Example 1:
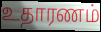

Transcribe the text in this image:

உதாரணம்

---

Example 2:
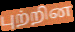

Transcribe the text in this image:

புற்றின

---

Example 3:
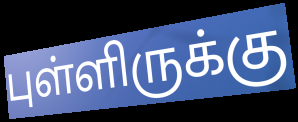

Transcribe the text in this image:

புள்ளிருக்கு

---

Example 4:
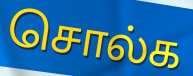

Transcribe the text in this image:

சொல்க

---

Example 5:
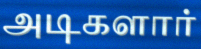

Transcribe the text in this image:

அடிகளார்